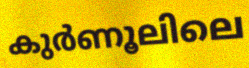
കുർണൂലിലെ